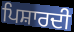
ਪਿਸ਼ਾਰਦੀ